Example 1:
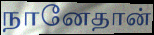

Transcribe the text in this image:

நானேதான்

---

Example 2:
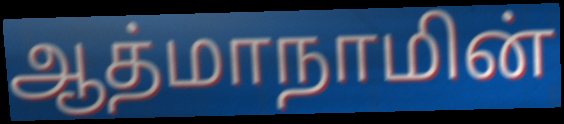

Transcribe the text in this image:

ஆத்மாநாமின்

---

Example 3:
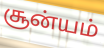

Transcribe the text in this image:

சூன்யம்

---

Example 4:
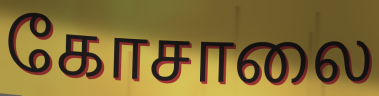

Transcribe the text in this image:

கோசாலை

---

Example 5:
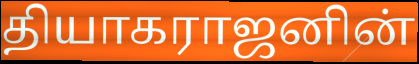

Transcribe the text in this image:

தியாகராஜனின்